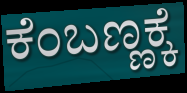
ಕೆಂಬಣ್ಣಕ್ಕೆ